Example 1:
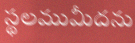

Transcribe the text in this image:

స్థలముమీదను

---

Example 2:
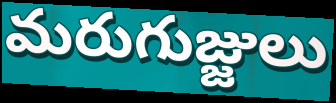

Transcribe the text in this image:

మరుగుజ్జులు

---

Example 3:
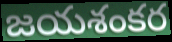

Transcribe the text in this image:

జయశంకర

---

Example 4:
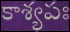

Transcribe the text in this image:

కాశ్యపః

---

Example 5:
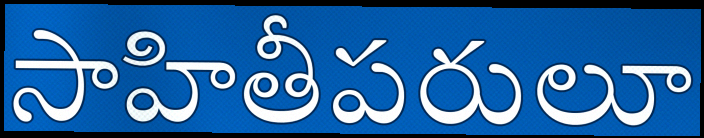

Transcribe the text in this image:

సాహితీపరులూ